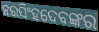
ନରସିଂହଦେବଙ୍କର